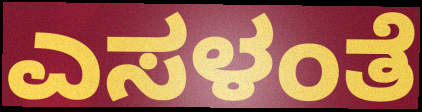
ಎಸಳಂತೆ